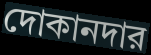
দোকানদার